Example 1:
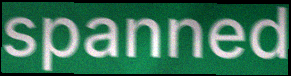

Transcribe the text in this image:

spanned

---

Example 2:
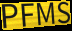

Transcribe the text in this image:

PFMS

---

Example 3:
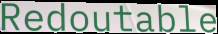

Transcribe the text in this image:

Redoutable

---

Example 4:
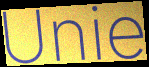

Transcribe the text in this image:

Unie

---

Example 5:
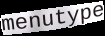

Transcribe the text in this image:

menutype